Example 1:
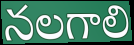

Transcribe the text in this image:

నలగాలి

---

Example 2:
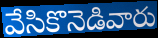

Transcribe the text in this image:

వేసికొనెడివారు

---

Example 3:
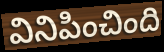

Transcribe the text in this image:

వినిపించింది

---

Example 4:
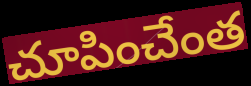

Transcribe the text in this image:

చూపించేంత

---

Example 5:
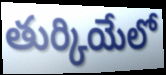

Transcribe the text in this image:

తుర్కియేలో